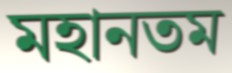
মহানতম